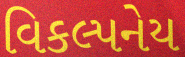
વિકલ્પનેય